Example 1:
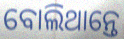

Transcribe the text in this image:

ବୋଲିଥାନ୍ତେ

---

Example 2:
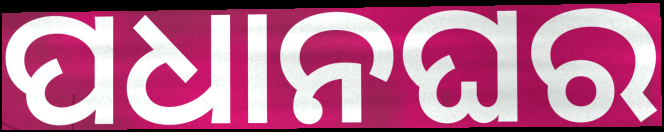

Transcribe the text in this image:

ପଧାନଘର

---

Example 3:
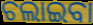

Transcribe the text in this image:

ଚଲାଇବା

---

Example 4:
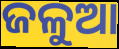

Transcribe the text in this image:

ଜଳୁଆ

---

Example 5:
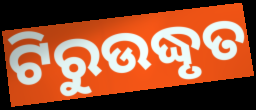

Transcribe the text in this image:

ଟିରୁଉଦ୍ଧୃତ